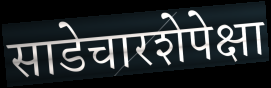
साडेचारशेपेक्षा